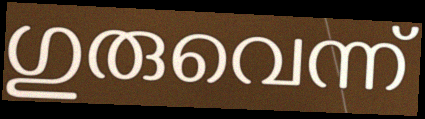
ഗുരുവെന്ന്